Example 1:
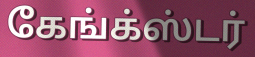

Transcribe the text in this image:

கேங்க்ஸ்டர்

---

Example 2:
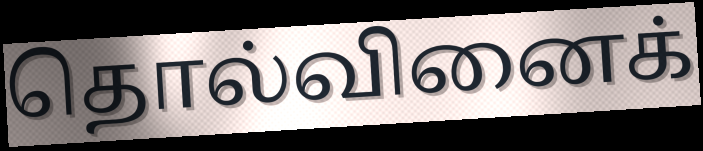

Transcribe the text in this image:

தொல்வினைக்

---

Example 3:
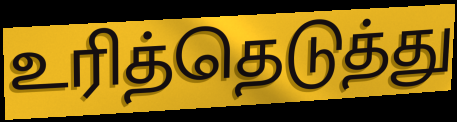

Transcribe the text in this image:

உரித்தெடுத்து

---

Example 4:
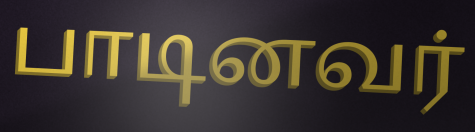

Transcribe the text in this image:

பாடினவர்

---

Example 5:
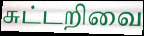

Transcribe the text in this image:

சுட்டறிவை